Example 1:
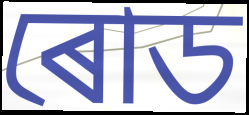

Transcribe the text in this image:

ৰোড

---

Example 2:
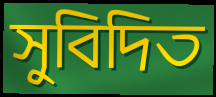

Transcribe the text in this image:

সুবিদিত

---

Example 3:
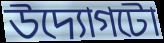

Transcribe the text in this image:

উদ্যোগটো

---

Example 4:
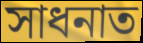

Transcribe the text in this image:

সাধনাত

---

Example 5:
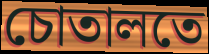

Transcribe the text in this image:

চোতালতে